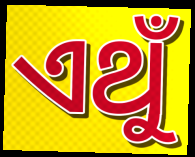
ଏଥୁଁ